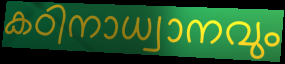
കഠിനാധ്വാനവും